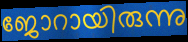
ജോറായിരുന്നു